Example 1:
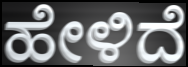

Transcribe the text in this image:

ಹೇಳಿದೆ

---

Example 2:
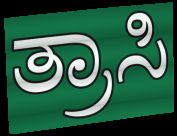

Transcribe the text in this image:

ತ್ರಾಸಿ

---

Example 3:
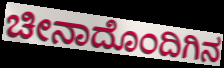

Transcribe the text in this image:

ಚೀನಾದೊಂದಿಗಿನ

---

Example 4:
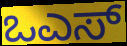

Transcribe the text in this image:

ಒಎಸ್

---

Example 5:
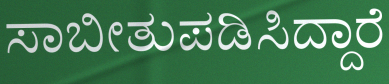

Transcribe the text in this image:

ಸಾಬೀತುಪಡಿಸಿದ್ದಾರೆ